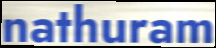
nathuram